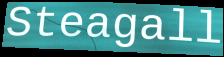
Steagall